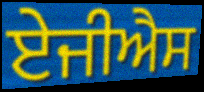
ਏਜੀਐਸ